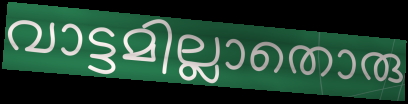
വാട്ടമില്ലാതൊരു